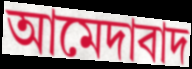
আমেদাবাদ